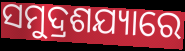
ସମୁଦ୍ରଶଯ୍ୟାରେ